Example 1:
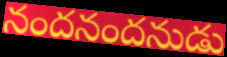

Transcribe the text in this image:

నందనందనుడు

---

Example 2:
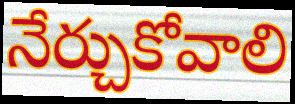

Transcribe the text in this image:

నేర్చుకోవాలి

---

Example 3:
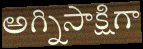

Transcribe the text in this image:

అగ్నిసాక్షిగా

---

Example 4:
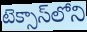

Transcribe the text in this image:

టెక్సాస్‌లోని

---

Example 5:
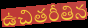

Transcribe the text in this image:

ఉచితరీతిన